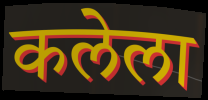
कलेला